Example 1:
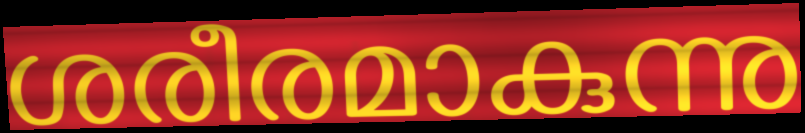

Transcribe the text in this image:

ശരീരമാകുന്നു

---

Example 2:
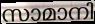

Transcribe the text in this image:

സാമാനി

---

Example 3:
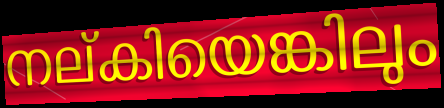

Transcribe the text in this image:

നല്‌കിയെങ്കിലും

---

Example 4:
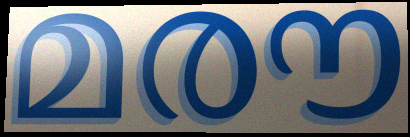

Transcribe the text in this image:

മരൗ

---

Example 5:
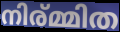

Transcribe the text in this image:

നിര്മ്മിത